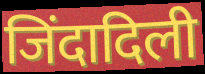
जिंदादिली